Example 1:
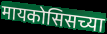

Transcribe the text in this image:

मायकोसिसच्या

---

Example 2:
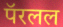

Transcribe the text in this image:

पॅरलल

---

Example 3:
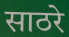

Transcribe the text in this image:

साठरे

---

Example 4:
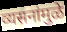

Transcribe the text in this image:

व्यसनांमुळे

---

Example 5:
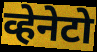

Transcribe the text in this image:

व्हेनेटो